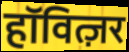
हॉवित्ज़र